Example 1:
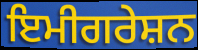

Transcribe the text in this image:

ਇਮੀਗਰੇਸ਼ਨ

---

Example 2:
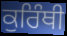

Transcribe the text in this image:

ਕੁਰਿੰਥੀ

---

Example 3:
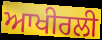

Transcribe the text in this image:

ਆਖੀਰਲੀ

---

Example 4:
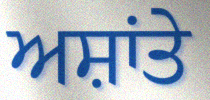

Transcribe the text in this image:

ਅਸ਼ਾਂਤੇ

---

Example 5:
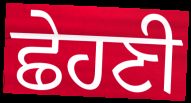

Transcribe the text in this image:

ਛੇਹਣੀ